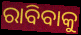
ରାବିବାକୁ